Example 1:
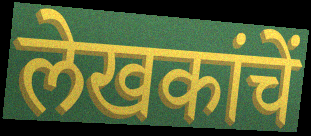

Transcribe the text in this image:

लेखकांचें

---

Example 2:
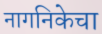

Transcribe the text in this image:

नागनिकेचा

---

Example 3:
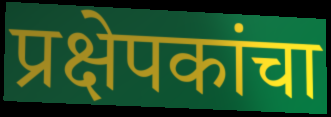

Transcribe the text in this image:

प्रक्षेपकांचा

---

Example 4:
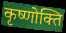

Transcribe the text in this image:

कृष्णोक्ति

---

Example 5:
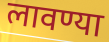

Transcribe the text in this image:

लावण्या